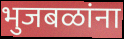
भुजबळांना